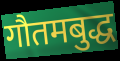
गौतमबुद्ध